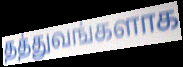
தத்துவங்களாக